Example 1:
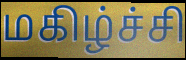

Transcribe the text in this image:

மகிழ்ச்சி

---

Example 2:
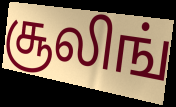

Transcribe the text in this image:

சூலிங்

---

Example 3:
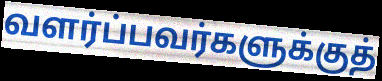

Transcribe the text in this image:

வளர்ப்பவர்களுக்குத்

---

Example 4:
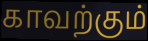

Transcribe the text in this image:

காவற்கும்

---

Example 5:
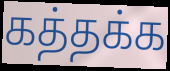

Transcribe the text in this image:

கத்தக்க